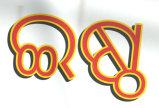
ଇଷ୍ଠ